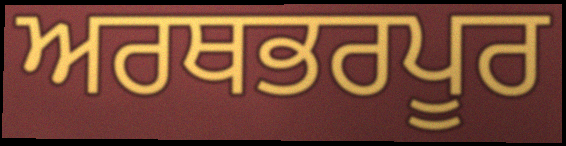
ਅਰਥਭਰਪੂਰ